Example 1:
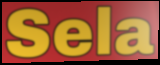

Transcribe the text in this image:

Sela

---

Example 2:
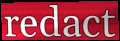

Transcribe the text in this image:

redact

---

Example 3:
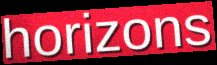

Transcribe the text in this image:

horizons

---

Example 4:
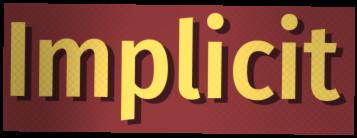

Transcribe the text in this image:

Implicit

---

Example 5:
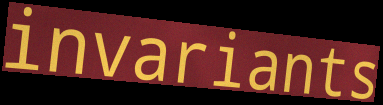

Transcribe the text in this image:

invariants